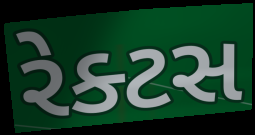
રેક્ટસ